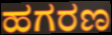
ಹಗರಣ